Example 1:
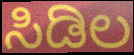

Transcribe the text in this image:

ಸಿಡಿಲ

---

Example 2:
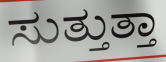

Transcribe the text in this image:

ಸುತ್ತುತ್ತಾ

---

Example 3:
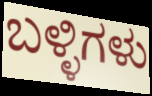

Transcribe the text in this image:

ಬಳ್ಳಿಗಳು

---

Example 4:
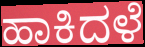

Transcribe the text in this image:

ಹಾಕಿದಳೆ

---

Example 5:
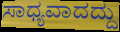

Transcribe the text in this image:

ಸಾಧ್ಯವಾದದ್ದು